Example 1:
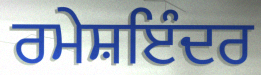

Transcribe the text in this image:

ਰਮੇਸ਼ਇੰਦਰ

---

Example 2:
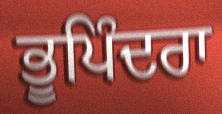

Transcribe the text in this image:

ਭੂਪਿੰਦਰਾ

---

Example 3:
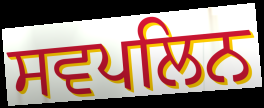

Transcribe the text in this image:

ਸਵਪਲਿਨ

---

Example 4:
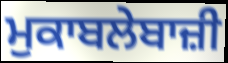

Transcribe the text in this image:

ਮੁਕਾਬਲੇਬਾਜ਼ੀ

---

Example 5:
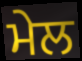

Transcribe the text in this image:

ਮੇਲ